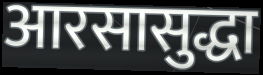
आरसासुद्धा